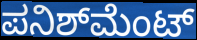
ಪನಿಶ್‌ಮೆಂಟ್